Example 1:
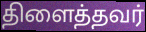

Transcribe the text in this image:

திளைத்தவர்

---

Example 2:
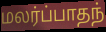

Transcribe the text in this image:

மலர்ப்பாதந்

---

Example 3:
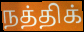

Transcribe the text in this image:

நத்திக்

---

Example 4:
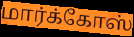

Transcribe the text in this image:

மார்க்கோஸ்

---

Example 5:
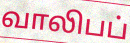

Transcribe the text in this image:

வாலிபப்